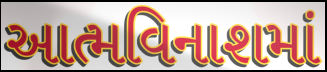
આત્મવિનાશમાં